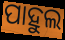
ପାହୁଲ